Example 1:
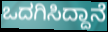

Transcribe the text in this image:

ಒದಗಿಸಿದ್ದಾನೆ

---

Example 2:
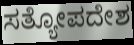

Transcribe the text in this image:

ಸತ್ಯೋಪದೇಶ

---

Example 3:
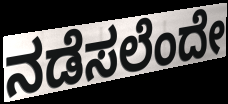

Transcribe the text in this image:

ನಡೆಸಲೆಂದೇ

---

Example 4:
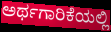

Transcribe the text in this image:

ಅರ್ಥಗಾರಿಕೆಯಲ್ಲಿ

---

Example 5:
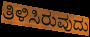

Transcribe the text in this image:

ತಿಳಿಸಿರುವುದು